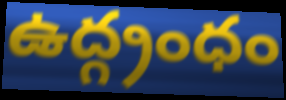
ఉద్గ్రంధం